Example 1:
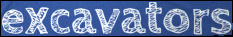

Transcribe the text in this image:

excavators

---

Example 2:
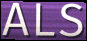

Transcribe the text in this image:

ALS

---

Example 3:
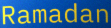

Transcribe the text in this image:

Ramadan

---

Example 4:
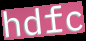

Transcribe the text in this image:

hdfc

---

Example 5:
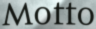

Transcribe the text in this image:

Motto